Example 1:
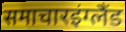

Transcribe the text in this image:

समाचारइंग्लैंड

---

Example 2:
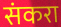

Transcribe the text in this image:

संकरा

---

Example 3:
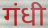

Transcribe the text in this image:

गंधी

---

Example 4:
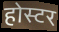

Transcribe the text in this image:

होस्टर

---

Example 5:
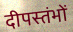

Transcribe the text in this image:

दीपस्तंभों